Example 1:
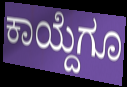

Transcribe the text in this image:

ಕಾಯ್ದೆಗೂ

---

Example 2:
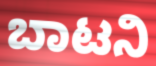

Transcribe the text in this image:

ಬಾಟನಿ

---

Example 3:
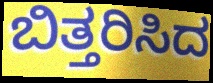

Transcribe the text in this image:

ಬಿತ್ತರಿಸಿದ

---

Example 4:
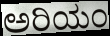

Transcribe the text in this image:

ಅರಿಯಂ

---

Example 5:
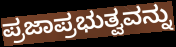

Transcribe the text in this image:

ಪ್ರಜಾಪ್ರಭುತ್ವವನ್ನು